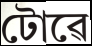
টোৱে